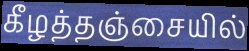
கீழத்தஞ்சையில்